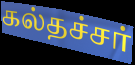
கல்தச்சர்